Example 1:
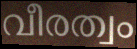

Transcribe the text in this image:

വീരത്വം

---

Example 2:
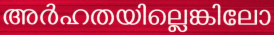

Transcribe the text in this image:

അർഹതയില്ലെങ്കിലോ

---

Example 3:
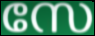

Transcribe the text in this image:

സേ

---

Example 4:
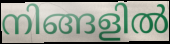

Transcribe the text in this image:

നിങ്ങളിൽ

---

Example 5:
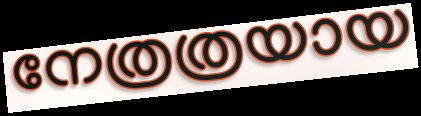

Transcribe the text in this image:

നേത്രത്രയായ